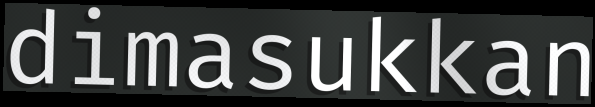
dimasukkan